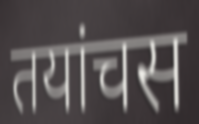
तयांचस